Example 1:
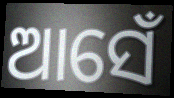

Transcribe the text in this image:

ଆସେଁ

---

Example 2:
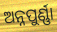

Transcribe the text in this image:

ଅନ୍ନପୁର୍ଣ୍ଣା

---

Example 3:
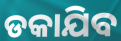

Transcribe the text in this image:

ଡକାଯିବ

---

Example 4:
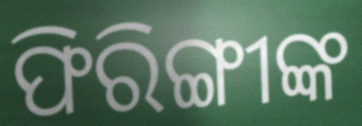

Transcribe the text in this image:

ଫିରିଙ୍ଗୀଙ୍କ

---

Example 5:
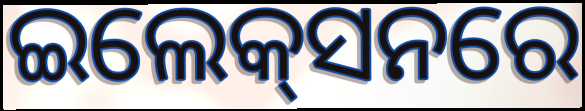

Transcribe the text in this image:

ଇଲେକ୍‍ସନରେ